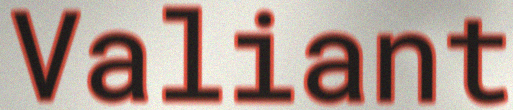
Valiant